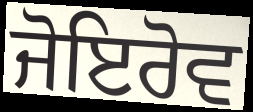
ਜੋਇਰੋਵ